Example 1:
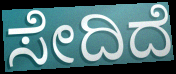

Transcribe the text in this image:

ಸೇದಿದೆ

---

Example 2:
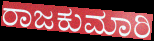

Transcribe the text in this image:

ರಾಜಕುಮಾರಿ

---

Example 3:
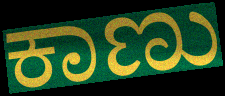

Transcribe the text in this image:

ಕಾಣು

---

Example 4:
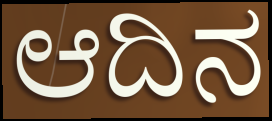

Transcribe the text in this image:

ಆದಿನ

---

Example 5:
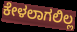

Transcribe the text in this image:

ಕೇಳಲಾಗಲಿಲ್ಲ